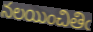
నలయించితిఁ